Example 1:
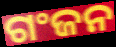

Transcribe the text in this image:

ଗଂଜନ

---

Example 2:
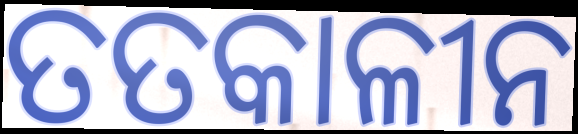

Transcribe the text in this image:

ତତକାଳୀନ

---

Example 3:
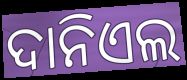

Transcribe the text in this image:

ଦାନିଏଲ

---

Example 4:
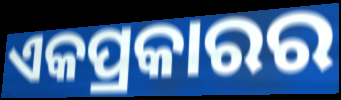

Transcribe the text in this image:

ଏକପ୍ରକାରର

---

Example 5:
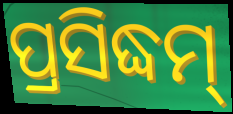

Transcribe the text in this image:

ପ୍ରସିଦ୍ଧମ୍